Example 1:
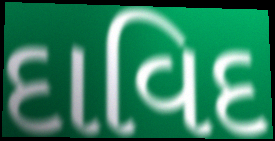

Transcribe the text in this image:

દાવિદ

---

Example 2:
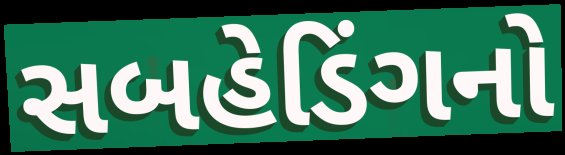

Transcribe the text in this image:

સબહેડિંગનો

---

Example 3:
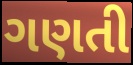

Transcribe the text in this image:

ગણતી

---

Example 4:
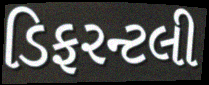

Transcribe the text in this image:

ડિફરન્ટલી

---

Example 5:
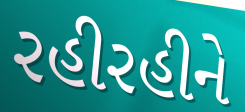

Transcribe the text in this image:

રહીરહીને